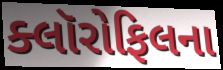
ક્લૉરોફિલના